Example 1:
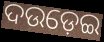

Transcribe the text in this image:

ଦଉଡ଼େଇ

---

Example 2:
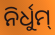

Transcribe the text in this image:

ନିର୍ଧୁମ୍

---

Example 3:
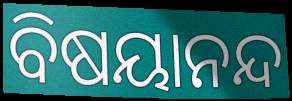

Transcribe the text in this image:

ବିଷୟାନନ୍ଦ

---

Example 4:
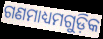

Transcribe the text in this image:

ଗଣମାଧ୍ୟମଗୁଡ଼ିକ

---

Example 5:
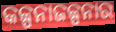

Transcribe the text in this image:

କଳ୍ପନାଜଳ୍ପନାର